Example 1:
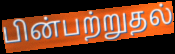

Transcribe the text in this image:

பின்பற்றுதல்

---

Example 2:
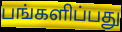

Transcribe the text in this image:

பங்களிப்பது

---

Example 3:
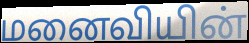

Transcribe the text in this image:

மனைவியின்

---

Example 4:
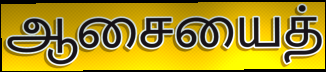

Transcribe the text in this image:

ஆசையைத்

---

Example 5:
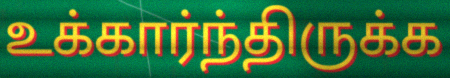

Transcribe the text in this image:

உக்கார்ந்திருக்க